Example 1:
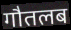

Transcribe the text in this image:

गौतलब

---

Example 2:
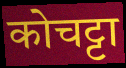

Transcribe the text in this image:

कोचट्टा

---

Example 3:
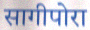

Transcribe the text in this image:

सागीपोरा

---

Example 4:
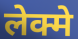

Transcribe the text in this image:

लेक्मे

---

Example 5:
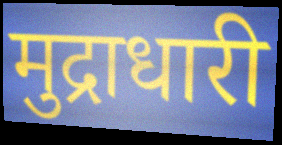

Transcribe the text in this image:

मुद्राधारी